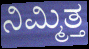
ನಿಮ್ಮಿತ್ತ